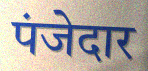
पंजेदार